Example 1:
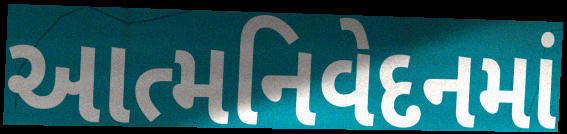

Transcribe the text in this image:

આત્મનિવેદનમાં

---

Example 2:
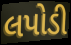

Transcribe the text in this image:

લપોડી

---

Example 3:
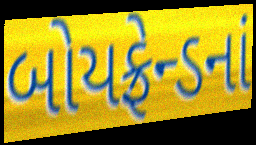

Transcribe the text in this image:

બોયફ્રેન્ડનાં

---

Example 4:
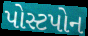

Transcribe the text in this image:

પોસ્ટપોન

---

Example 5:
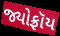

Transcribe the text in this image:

જ્યોફ્રૉય